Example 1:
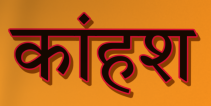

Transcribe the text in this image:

कांहश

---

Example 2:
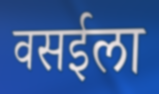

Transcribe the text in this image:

वसईला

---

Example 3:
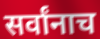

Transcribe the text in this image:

सर्वांनाच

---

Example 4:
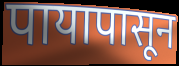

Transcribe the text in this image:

पायापासून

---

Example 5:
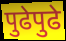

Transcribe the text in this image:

पुढेपुढे